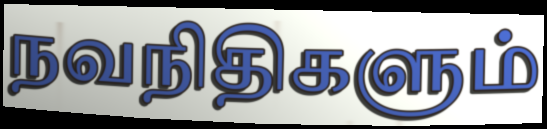
நவநிதிகளும்